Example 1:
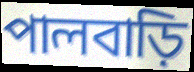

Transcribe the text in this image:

পালবাড়ি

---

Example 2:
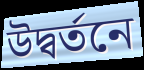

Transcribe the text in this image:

উদ্বর্তনে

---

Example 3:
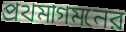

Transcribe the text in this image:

প্রথমাগমনের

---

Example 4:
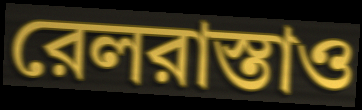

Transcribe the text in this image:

রেলরাস্তাও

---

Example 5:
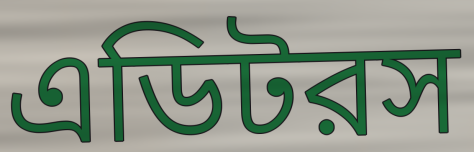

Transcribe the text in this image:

এডিটরস